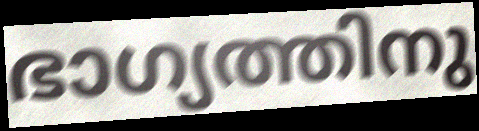
ഭാഗ്യത്തിനു